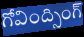
గోవింద్సింగ్